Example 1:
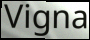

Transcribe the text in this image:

Vigna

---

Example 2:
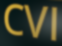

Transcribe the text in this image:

CVI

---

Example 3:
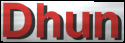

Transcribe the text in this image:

Dhun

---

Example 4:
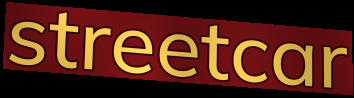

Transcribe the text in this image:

streetcar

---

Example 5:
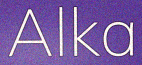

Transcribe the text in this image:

Alka